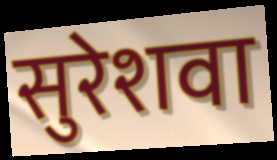
सुरेशवा